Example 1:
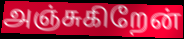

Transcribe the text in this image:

அஞ்சுகிறேன்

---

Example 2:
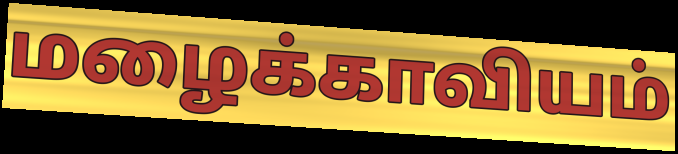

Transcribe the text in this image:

மழைக்காவியம்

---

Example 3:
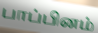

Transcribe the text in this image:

பாப்பினம்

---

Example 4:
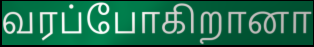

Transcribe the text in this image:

வரப்போகிறானா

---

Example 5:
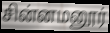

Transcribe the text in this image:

சின்னமனூர்